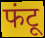
फंटू